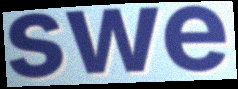
swe